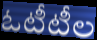
ఓటీటీల